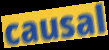
causal